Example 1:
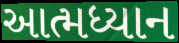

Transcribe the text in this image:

આત્મધ્યાન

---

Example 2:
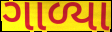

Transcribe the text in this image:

ગાળ્યા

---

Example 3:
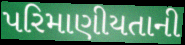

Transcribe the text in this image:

પરિમાણીયતાની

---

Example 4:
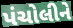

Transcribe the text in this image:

પંચોલીને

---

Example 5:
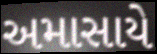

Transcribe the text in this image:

અમાસાયે